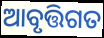
ଆବୃତ୍ତିଗତ